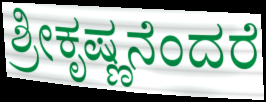
ಶ್ರೀಕೃಷ್ಣನೆಂದರೆ